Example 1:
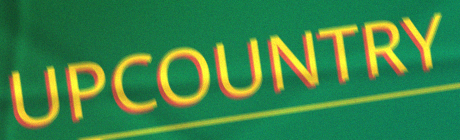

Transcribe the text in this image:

UPCOUNTRY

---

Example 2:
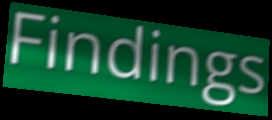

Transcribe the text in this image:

Findings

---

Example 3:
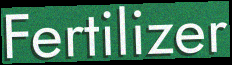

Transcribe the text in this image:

Fertilizer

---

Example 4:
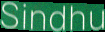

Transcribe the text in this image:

Sindhu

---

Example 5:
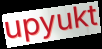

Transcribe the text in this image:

upyukt